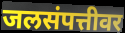
जलसंपत्तीवर